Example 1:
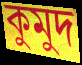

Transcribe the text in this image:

কুমুদ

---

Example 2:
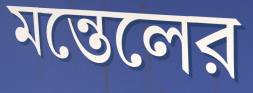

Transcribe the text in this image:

মন্তেলের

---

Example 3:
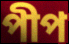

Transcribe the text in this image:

পীপ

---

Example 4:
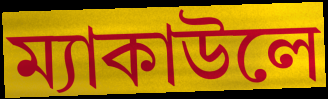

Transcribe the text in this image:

ম্যাকাউলে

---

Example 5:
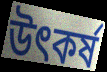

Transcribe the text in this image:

উৎকর্ষ